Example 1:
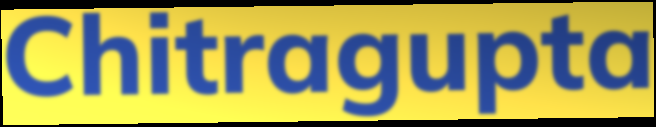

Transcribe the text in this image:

Chitragupta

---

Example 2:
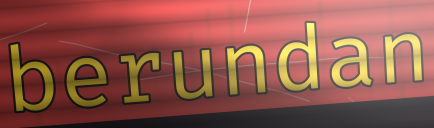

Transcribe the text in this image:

berundan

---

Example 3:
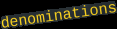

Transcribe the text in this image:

denominations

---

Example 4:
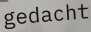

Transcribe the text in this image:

gedacht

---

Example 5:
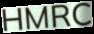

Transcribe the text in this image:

HMRC